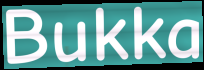
Bukka